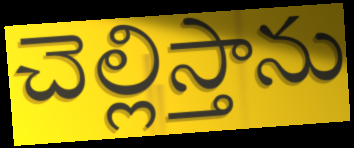
చెల్లిస్తాను